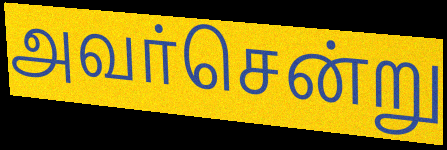
அவர்சென்று